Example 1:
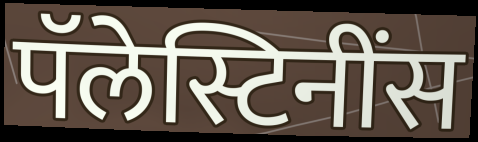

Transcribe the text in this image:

पॅलेस्टिनींस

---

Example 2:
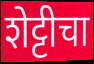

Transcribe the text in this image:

शेट्टीचा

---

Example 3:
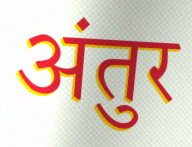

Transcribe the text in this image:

अंतुर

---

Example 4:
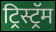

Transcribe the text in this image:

ट्रिस्ट्रॅम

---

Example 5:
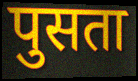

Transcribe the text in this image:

पुसता